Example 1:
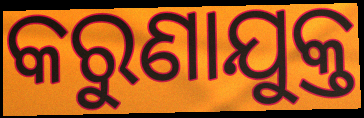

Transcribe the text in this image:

କରୁଣାଯୁକ୍ତ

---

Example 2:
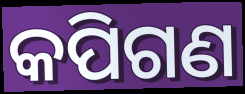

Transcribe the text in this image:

କପିଗଣ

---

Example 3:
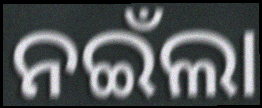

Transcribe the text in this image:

ନଇଁଲା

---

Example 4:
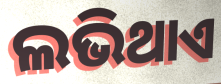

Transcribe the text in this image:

ଲଭିଥାଏ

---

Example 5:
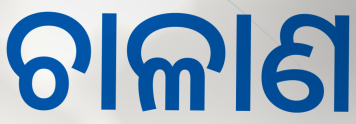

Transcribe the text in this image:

ଚାଳାଣ